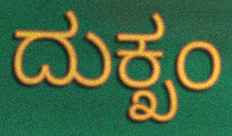
ದುಕ್ಖಂ